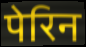
पेरिन